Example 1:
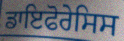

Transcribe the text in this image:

ਡਾਇਫੋਰੇਸਿਸ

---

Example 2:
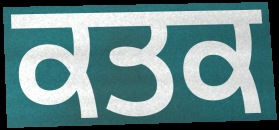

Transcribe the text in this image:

ਕਤਕ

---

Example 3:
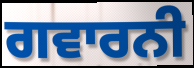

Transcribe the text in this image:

ਗਵਾਰਨੀ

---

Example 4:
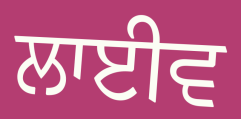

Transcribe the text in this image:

ਲਾਈਵ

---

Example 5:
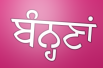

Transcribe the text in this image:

ਬੰਨ੍ਹਣਾਂ